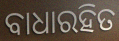
ବାଧାରହିତ